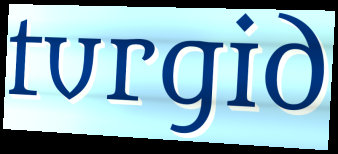
turgid